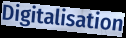
Digitalisation